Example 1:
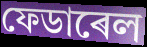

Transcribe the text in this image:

ফেডাৰেল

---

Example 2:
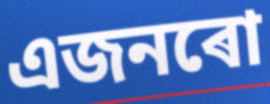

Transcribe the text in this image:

এজনৰো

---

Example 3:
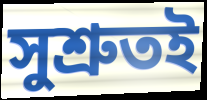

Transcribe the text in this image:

সুশ্ৰুতই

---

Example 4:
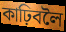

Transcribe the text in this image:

কাঢ়িবলৈ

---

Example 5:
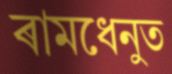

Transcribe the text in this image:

ৰামধেনুত